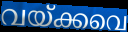
വയ്ക്കവെ